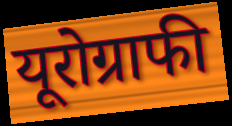
यूरोग्राफी